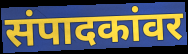
संपादकांवर